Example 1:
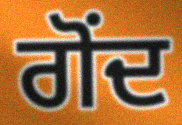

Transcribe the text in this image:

ਗੋਂਦ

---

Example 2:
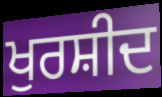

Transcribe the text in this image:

ਖੁਰਸ਼ੀਦ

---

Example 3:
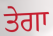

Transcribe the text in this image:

ਤੇਗਾ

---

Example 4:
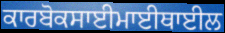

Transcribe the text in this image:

ਕਾਰਬੋਕਸਾਈਮਾਈਥਾਈਲ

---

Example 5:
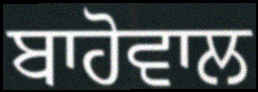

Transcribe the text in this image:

ਬਾਹੋਵਾਲ